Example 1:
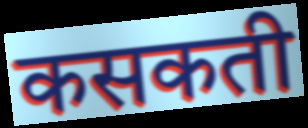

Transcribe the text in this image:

कसकती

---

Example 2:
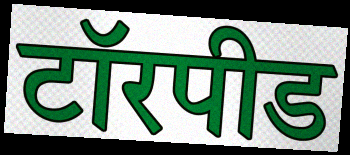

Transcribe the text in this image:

टॉरपीड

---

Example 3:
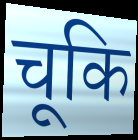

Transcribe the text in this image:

चूकि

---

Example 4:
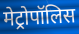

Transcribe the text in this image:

मेट्रोपॉलिस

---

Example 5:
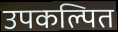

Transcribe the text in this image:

उपकल्पित